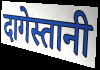
दागेस्तानी